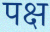
पक्ष